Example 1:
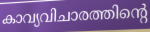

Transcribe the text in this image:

കാവ്യവിചാരത്തിന്റെ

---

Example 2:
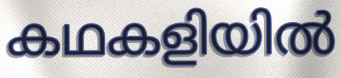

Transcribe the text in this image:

കഥകളിയിൽ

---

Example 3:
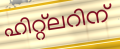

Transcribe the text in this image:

ഹിറ്റ്ലറിന്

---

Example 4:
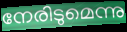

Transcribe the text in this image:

നേരിടുമെന്നു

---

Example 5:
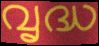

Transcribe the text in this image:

വൃദ്ധ